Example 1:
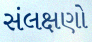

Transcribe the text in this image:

સંલક્ષણો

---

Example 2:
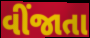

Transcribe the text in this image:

વીંજાતા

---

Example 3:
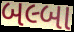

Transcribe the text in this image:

બલ્બા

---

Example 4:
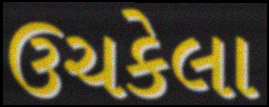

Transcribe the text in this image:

ઉચકેલા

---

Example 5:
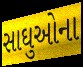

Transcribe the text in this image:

સાઘુઓના